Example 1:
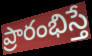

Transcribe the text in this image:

ప్రారంభిస్తే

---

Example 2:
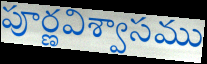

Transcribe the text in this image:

పూర్ణవిశ్వాసము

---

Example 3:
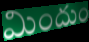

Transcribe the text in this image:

మిందుం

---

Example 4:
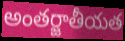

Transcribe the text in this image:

అంతర్జాతీయత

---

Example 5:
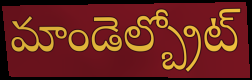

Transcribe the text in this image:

మాండెల్బ్రోట్